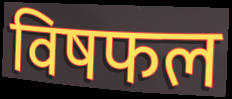
विषफल